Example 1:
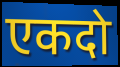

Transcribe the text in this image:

एकदो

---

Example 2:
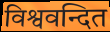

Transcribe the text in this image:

विश्ववन्दित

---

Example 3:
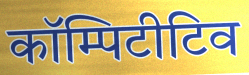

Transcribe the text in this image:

कॉम्पिटीटिव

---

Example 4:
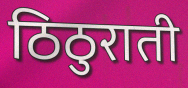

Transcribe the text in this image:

ठिठुराती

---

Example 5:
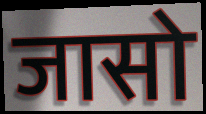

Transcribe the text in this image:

जासो